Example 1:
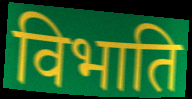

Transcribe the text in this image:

विभाति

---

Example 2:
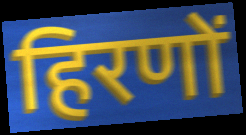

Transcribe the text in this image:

हिरणों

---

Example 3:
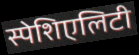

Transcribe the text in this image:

स्पेशिएलिटी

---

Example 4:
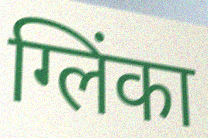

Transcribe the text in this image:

ग्लिंका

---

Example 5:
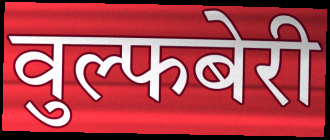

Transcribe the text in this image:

वुल्फबेरी